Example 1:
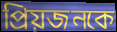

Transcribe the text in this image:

প্রিয়জনকে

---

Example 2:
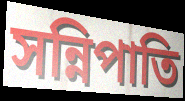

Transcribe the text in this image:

সন্নিপাতি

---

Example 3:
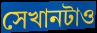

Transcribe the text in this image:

সেখানটাও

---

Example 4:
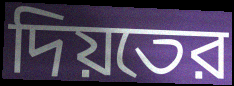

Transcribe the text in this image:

দিয়তের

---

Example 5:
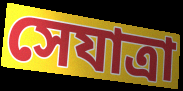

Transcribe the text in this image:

সেযাত্রা